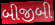
બીજીબી